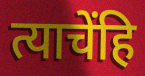
त्याचेंहि